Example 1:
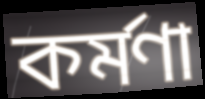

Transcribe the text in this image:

কর্মণা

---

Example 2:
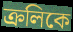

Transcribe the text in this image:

ক্রলিকে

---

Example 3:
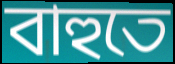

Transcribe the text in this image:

বাহুতে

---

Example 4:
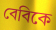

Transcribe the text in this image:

বেবিকে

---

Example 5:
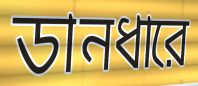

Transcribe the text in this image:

ডানধারে